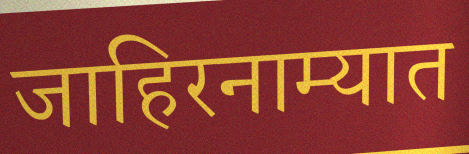
जाहिरनाम्यात